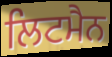
ਲਿਟਮੈਨ